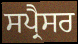
ਸਪ੍ਰੈਸਰ